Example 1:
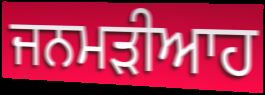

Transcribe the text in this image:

ਜਨਮੜੀਆਹ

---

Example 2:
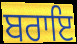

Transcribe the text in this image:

ਬਰਾਇ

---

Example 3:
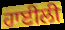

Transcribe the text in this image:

ਹਾਈਲੀ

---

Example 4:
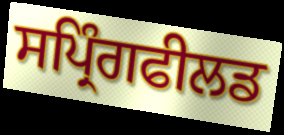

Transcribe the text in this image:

ਸਪ੍ਰਿੰਗਫੀਲਡ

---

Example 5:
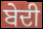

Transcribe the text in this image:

ਬੇਦੀ